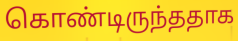
கொண்டிருந்ததாக